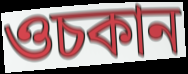
ওচকান